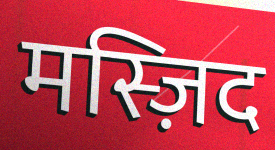
मस्ज़िद